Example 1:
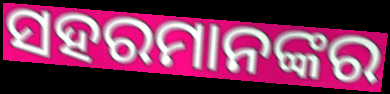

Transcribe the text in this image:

ସହରମାନଙ୍କର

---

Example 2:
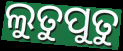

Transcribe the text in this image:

ଲୁତୁପୁତୁ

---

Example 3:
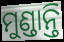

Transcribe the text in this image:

ମୁଣ୍ଡାନ୍ତି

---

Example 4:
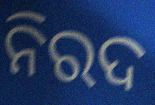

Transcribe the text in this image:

ନିରଦ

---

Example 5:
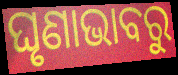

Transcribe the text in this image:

ଘୃଣାଭାବରୁ